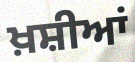
ਖ਼ਸ਼ੀਆਂ